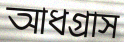
আধগ্রাস